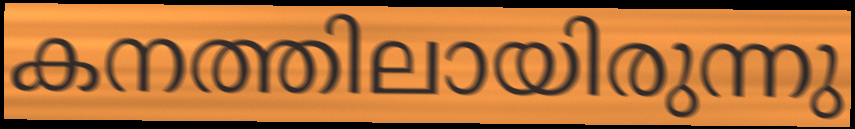
കനത്തിലായിരുന്നു